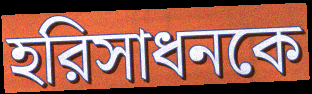
হরিসাধনকে